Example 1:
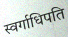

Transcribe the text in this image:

स्वर्गाधिपति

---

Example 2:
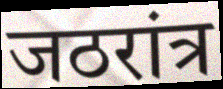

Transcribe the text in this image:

जठरांत्र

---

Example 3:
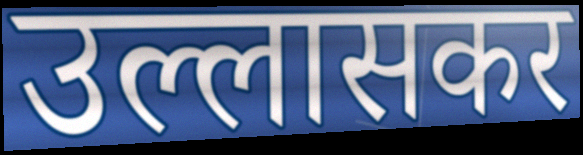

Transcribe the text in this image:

उल्लासकर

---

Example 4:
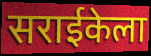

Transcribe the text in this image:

सराईकेला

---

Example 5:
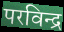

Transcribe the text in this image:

परविन्द्र